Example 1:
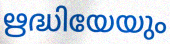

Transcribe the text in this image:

ഋദ്ധിയേയും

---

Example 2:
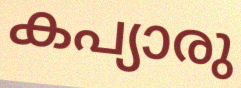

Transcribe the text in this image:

കപ്യാരു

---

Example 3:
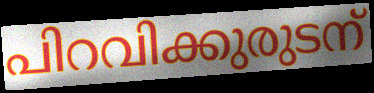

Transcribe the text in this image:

പിറവിക്കുരുടന്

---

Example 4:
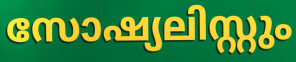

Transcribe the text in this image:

സോഷ്യലിസ്റ്റും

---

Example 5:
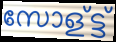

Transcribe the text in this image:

സോള്ട്ട്